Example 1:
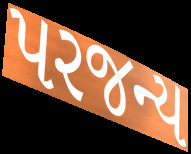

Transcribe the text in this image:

પરજન્ય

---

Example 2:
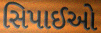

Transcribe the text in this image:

સિપાઈઓ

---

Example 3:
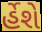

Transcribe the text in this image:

ર્હેશે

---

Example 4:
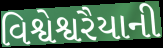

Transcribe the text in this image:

વિશ્વેશ્વરૈયાની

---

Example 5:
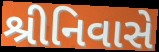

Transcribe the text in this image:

શ્રીનિવાસે